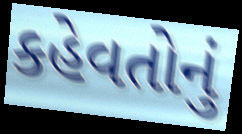
કહેવતોનું